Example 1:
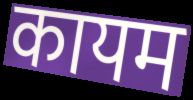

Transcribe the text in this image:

कायम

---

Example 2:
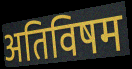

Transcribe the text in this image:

अतिविषम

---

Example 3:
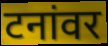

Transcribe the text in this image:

टनांवर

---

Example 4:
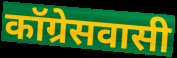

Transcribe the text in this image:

कॉग्रेसवासी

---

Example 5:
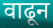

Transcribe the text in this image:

वाढून